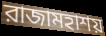
রাজামহাশয়